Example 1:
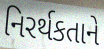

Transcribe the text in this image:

નિરર્થકતાને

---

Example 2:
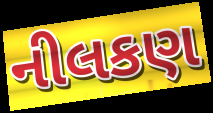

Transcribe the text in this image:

નીલકણ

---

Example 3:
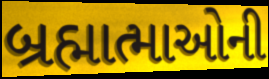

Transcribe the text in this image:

બ્રહ્માત્માઓની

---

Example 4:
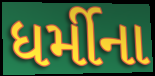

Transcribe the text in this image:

ધર્મીના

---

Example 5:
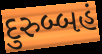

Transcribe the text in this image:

દુરુબ્બહં